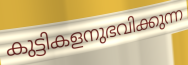
കുട്ടികളനുഭവിക്കുന്ന